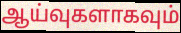
ஆய்வுகளாகவும்